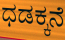
ಧಡಕ್ಕನೆ